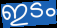
ഇടം